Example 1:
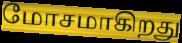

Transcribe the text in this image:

மோசமாகிறது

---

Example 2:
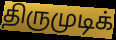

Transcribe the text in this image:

திருமுடிக்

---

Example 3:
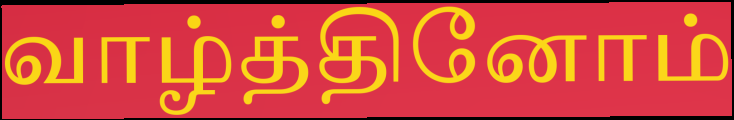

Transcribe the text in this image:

வாழ்த்தினோம்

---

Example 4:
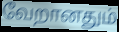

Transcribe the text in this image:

வேறானதும்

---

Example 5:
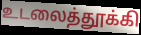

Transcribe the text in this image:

உடலைத்தூக்கி